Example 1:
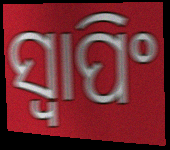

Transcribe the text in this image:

ସ୍ବାପିଂ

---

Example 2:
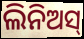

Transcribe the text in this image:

ଲିନିଅସ୍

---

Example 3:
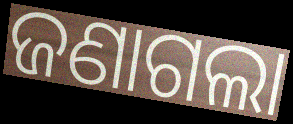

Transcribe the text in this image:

ଜଣାଗଲା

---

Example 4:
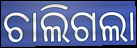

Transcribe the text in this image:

ଚାଲିଗଲା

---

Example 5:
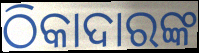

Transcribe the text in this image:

ଠିକାଦାରଙ୍କ